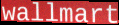
wallmart